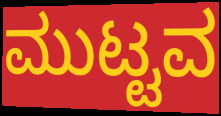
ಮುಟ್ಟವ